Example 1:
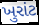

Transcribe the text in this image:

ખુરાંટ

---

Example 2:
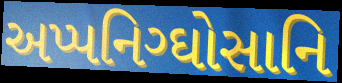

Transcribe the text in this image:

અપ્પનિગ્ઘોસાનિ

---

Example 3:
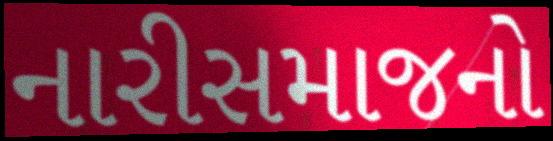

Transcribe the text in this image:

નારીસમાજનો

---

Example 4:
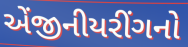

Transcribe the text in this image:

એંજીનીયરીંગનો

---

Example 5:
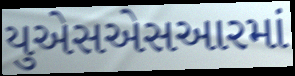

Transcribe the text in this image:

યુએસએસઆરમાં